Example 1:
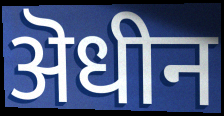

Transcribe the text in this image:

ऄधीन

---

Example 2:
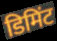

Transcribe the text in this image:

डिमिंट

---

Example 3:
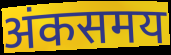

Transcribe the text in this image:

अंकसमय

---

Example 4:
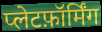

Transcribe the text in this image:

प्लेटफ़ॉर्मिंग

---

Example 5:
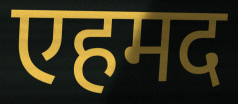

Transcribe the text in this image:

एहमद